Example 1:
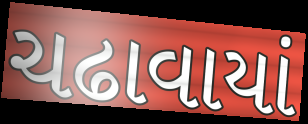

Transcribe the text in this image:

ચઢાવાયાં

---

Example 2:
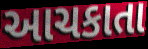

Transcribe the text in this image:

આચકાતા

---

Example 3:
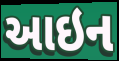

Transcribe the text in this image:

આઇન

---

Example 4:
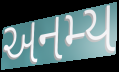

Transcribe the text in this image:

અનમ્ય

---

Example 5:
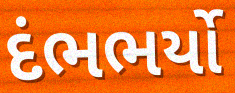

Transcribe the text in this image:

દંભભર્યો